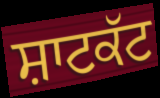
ਸ਼ਾਟਕੱਟ